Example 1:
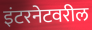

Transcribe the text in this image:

इंटरनेटवरील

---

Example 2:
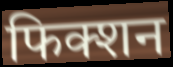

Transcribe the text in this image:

फिक्‍शन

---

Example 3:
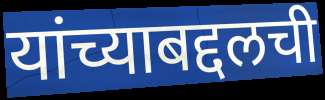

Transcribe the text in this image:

यांच्याबद्दलची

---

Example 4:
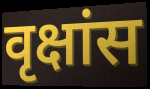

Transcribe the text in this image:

वृक्षांस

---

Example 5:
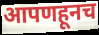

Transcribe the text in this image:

आपणहूनच